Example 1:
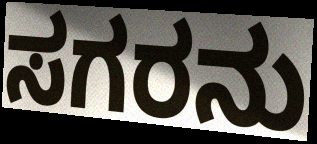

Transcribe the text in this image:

ಸಗರನು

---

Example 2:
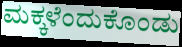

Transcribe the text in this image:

ಮಕ್ಕಳೆಂದುಕೊಂಡು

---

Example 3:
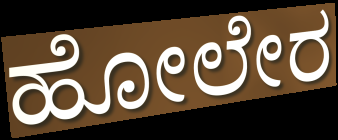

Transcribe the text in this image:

ಹೋಲೇರ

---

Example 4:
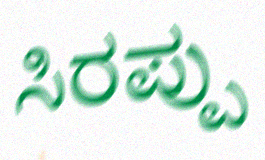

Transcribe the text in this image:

ಸಿರಪ್ಪು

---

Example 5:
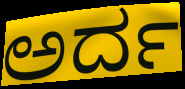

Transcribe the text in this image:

ಅರ್ದ